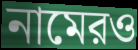
নামেরও